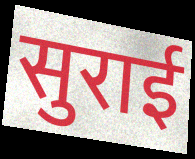
सुराई